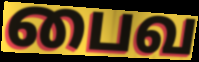
பைவ